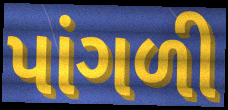
પાંગળી